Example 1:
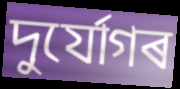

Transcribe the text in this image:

দুৰ্যোগৰ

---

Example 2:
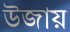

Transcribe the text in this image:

উজায়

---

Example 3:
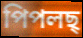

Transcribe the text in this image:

পিপলছ্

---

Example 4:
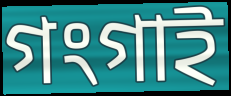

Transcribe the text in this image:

গংগাই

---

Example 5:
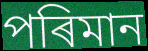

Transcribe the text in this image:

পৰিমান